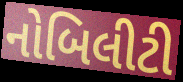
નોબિલીટી